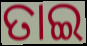
ତାଇ